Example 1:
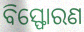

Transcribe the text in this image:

ବିସ୍ଫୋରଣ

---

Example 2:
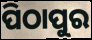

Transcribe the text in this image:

ପିଠାପୁର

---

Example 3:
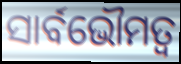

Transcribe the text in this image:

ସାର୍ବଭୌମତ୍ଵ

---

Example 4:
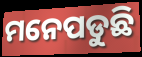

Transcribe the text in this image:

ମନେପଡୁଛି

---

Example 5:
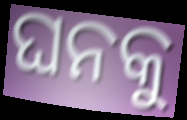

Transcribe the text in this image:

ଘନକୁ